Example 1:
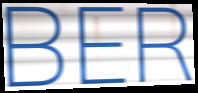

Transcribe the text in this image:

BER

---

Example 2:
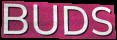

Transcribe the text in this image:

BUDS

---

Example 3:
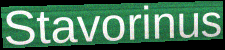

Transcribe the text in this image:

Stavorinus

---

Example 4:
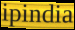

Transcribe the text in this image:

ipindia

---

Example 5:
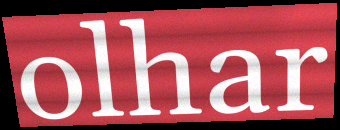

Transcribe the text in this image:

olhar